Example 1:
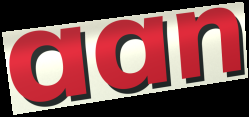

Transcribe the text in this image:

aan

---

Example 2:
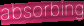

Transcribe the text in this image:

absorbing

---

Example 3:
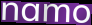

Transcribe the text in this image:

namo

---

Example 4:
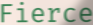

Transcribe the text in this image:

Fierce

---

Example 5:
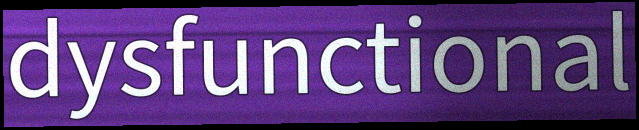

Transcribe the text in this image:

dysfunctional